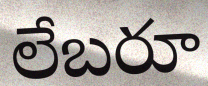
లేబరూ